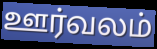
ஊர்வலம்